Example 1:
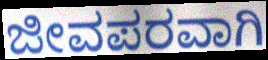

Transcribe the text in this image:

ಜೀವಪರವಾಗಿ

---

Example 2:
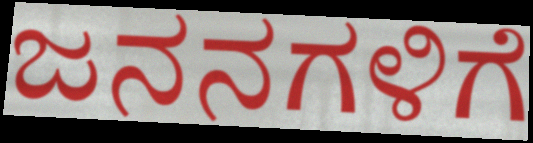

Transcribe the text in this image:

ಜನನಗಳಿಗೆ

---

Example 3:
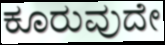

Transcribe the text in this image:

ಕೂರುವುದೇ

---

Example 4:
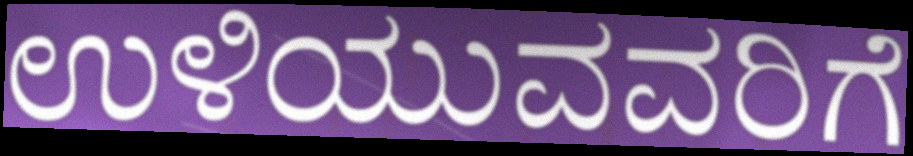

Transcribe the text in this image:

ಉಳಿಯುವವರಿಗೆ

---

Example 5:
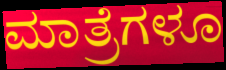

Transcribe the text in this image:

ಮಾತ್ರೆಗಳೂ